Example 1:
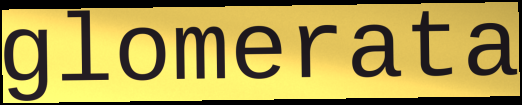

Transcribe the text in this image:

glomerata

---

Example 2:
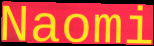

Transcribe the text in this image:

Naomi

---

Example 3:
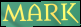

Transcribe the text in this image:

MARK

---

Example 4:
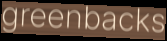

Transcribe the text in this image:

greenbacks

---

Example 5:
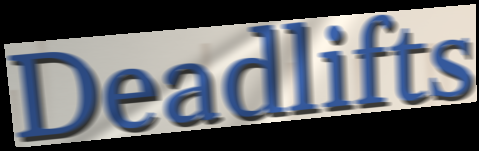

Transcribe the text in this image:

Deadlifts